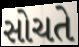
સોચતે